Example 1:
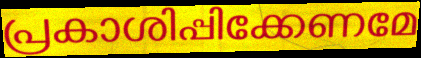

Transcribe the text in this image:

പ്രകാശിപ്പിക്കേണമേ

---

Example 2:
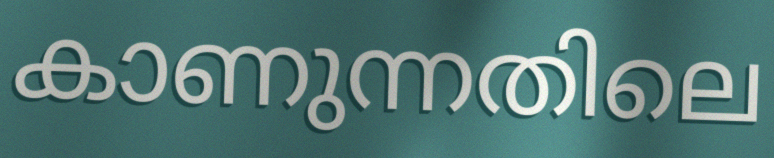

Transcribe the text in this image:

കാണുന്നതിലെ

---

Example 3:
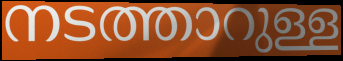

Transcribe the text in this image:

നടത്താറുള്ള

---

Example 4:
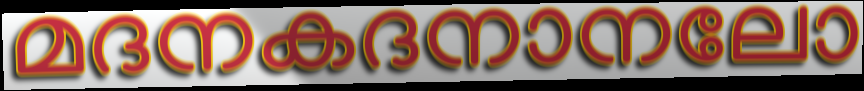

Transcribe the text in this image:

മദനകദനാനലോ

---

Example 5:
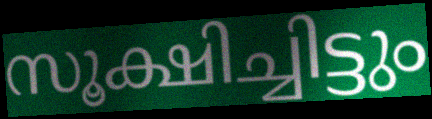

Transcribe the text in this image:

സൂക്ഷിച്ചിട്ടും